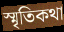
স্মৃতিকথা